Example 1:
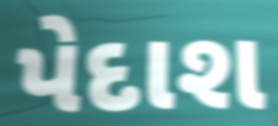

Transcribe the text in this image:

પેદાશ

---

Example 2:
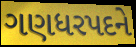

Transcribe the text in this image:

ગણધરપદને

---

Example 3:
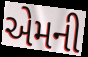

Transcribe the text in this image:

એમની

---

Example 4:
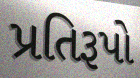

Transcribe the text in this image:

પ્રતિરૂપો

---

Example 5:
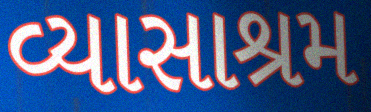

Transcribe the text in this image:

વ્યાસાશ્રમ